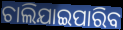
ଚାଲିଯାଇପାରିବ